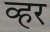
व्हर